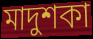
মাদুশকা